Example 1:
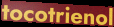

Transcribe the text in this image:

tocotrienol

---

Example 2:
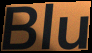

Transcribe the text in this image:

Blu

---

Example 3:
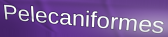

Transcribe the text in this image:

Pelecaniformes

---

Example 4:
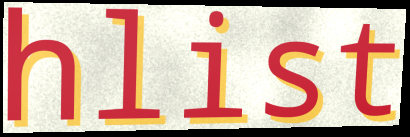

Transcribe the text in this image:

hlist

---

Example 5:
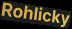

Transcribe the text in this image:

Rohlicky